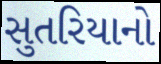
સુતરિયાનો